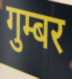
गुम्बर